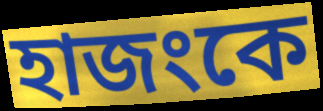
হাজংকে